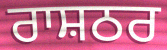
ਰਾਸ਼ਠਰ